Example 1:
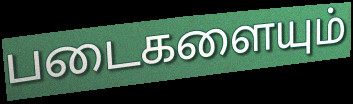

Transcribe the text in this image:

படைகளையும்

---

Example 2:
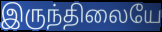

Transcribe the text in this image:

இருந்திலையே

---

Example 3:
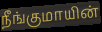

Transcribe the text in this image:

நீங்குமாயின்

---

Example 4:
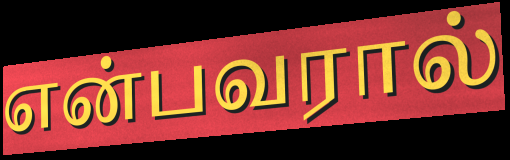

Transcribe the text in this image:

என்பவரால்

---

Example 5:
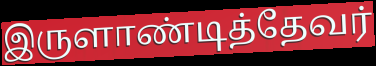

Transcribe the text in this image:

இருளாண்டித்தேவர்